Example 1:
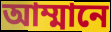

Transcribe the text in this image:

আম্মানে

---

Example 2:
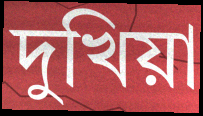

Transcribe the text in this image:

দুখিয়া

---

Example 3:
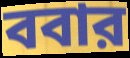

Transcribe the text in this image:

ববার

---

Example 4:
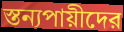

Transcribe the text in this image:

স্তন্যপায়ীদের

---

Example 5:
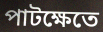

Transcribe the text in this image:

পাটক্ষেতে